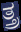
ತ್ತ್ರ